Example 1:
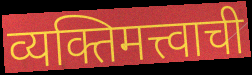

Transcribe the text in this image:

व्यक्तिमत्त्वाची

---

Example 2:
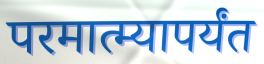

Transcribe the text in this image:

परमात्म्यापर्यंत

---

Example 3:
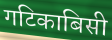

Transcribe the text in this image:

गटिकाबिसी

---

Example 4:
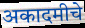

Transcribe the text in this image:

अकादमीचे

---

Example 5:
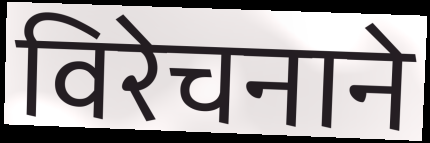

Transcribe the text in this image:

विरेचनाने